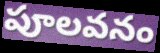
పూలవనం